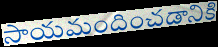
సాయమందించడానికి